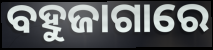
ବହୁଜାଗାରେ